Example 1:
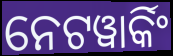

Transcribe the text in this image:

ନେଟୱାର୍କିଂ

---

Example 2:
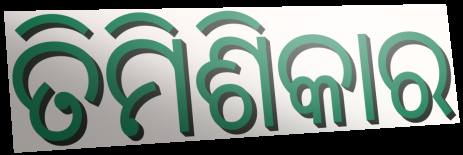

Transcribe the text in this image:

ତିମିଶିକାର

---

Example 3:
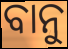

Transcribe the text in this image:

ବାନୁ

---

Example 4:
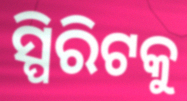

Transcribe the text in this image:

ସ୍ପିରିଟକୁ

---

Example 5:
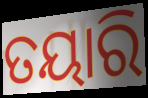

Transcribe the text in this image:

ତୟାରି